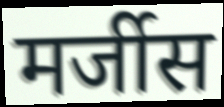
मर्जीस